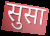
सुसा